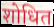
शोधित